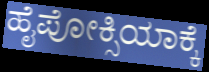
ಹೈಪೋಕ್ಸಿಯಾಕ್ಕೆ